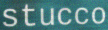
stucco